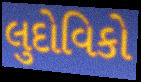
લુદોવિકો